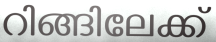
റിങ്ങിലേക്ക്